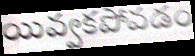
యివ్వకపోవడం